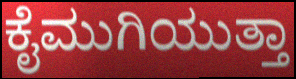
ಕೈಮುಗಿಯುತ್ತಾ